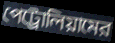
পেট্রোলিয়ামের